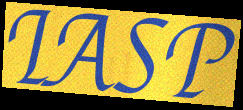
IASP